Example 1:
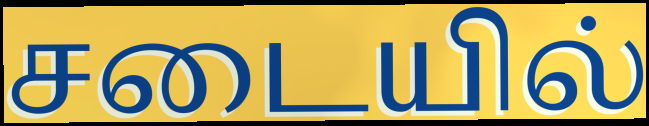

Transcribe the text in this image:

சடையில்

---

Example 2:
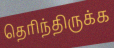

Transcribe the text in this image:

தெரிந்திருக்க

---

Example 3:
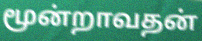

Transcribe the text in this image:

மூன்றாவதன்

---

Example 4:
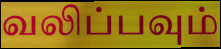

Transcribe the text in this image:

வலிப்பவும்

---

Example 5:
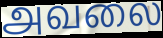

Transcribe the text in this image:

அவலை